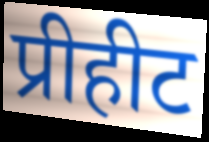
प्रीहीट